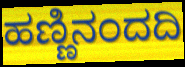
ಹಣ್ಣಿನಂದದಿ